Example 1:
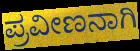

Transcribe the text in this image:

ಪ್ರವೀಣನಾಗಿ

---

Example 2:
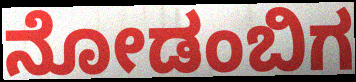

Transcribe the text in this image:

ನೋಡಂಬಿಗ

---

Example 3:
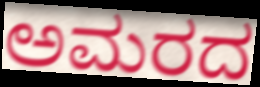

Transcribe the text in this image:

ಅಮರದ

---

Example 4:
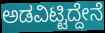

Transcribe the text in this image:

ಅಡವಿಟ್ಟಿದ್ದೇನೆ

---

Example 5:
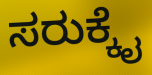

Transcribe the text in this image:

ಸರುಕ್ಕೈ